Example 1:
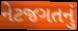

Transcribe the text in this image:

નેટજગતનું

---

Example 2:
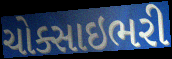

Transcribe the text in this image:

ચોક્સાઇભરી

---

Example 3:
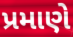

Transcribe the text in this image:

પ્રમાણે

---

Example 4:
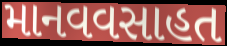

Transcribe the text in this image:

માનવવસાહત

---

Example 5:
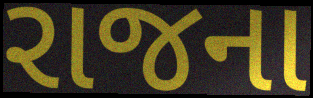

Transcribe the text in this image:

રાજના